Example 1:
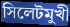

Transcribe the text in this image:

সিলেটমুখী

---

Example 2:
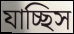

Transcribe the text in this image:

যাচ্ছিস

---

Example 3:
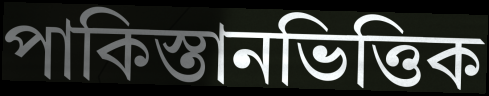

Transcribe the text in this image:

পাকিস্তানভিত্তিক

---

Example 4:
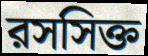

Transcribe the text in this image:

রসসিক্ত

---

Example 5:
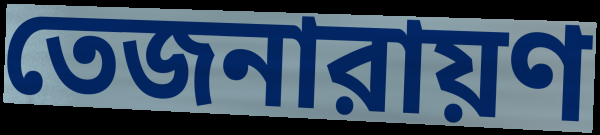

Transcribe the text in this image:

তেজনারায়ণ